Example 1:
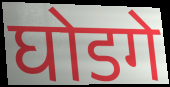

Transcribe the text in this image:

घोडगे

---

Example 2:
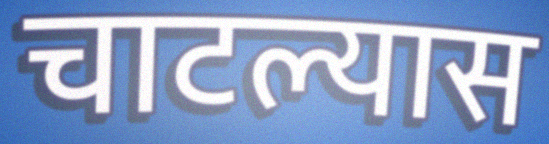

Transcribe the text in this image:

चाटल्यास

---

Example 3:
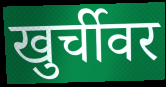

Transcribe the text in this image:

खुर्चीवर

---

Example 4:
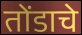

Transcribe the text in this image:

तोंडाचे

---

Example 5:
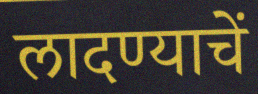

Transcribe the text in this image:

लादण्याचें